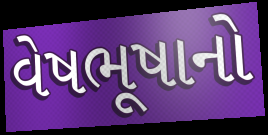
વેષભૂષાનો